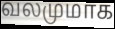
வலமுமாக